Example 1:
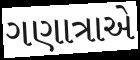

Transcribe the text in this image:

ગણાત્રાએ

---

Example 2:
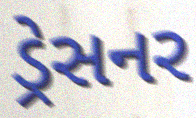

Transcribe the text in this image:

ડ્રેસનર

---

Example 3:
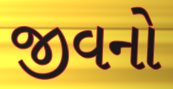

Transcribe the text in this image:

જીવનો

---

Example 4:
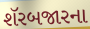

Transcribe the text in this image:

શૅરબજારના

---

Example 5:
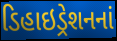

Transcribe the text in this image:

ડિહાઇડ્રેશનનાં